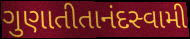
ગુણાતીતાનંદસ્વામી